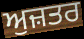
ਅੁਜ਼ਤਰ